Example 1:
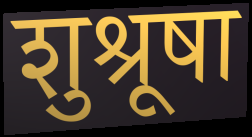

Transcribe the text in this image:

शुश्रूषा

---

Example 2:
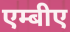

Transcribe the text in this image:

एम्बीए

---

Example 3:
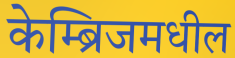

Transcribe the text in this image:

केम्ब्रिजमधील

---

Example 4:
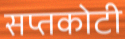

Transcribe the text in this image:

सप्तकोटी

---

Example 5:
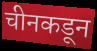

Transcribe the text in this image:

चीनकडून